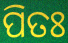
ପିତଃ